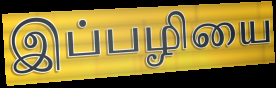
இப்பழியை